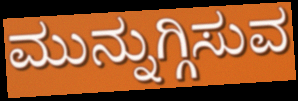
ಮುನ್ನುಗ್ಗಿಸುವ